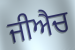
ਜੀਐਚ